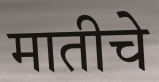
मातीचे